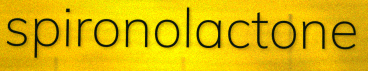
spironolactone